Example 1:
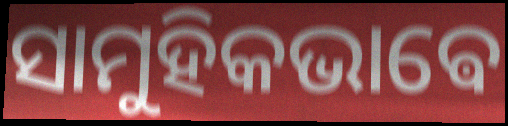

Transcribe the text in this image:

ସାମୁହିକଭାଵେ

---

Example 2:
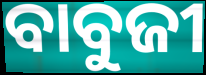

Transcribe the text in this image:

ବାବୁଜୀ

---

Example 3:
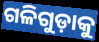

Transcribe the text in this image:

ଗଳିଗୁଡ଼ାକୁ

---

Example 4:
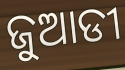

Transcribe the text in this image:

ଜୁଆଡୀ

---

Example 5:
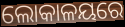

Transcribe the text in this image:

ଲୋକାଳୟରେ